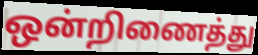
ஒன்றிணைத்து